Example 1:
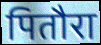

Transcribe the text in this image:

पितौरा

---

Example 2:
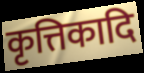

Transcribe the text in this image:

कृत्तिकादि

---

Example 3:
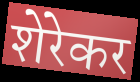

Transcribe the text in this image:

शेरेकर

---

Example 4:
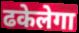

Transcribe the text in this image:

ढकेलेगा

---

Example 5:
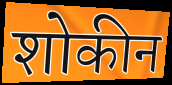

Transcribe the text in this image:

शोकीन